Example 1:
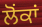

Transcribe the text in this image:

ਲੋਂਕਾਂ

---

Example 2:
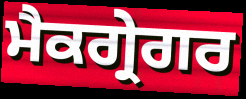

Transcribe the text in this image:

ਮੈਕਗ੍ਰੇਗਰ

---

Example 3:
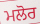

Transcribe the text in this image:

ਮਲੋਰ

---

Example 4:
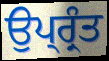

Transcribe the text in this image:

ਉਪ੍ਰ੍ਰੰਤ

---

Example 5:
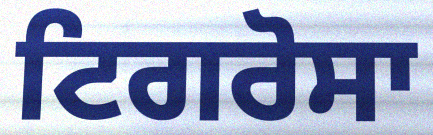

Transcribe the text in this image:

ਟਿਗਰੋਸਾ